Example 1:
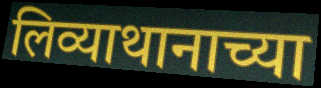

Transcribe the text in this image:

लिव्याथानाच्या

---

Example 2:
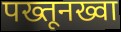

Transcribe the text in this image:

पख्तूनख्वा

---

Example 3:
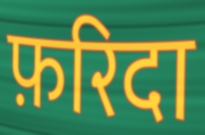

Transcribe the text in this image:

फ़रिदा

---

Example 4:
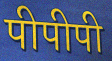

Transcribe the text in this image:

पीपीपी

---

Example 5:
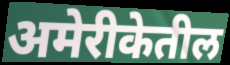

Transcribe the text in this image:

अमेरीकेतील